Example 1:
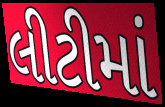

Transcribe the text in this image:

લીટીમાં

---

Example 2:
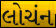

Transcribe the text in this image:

લોચંન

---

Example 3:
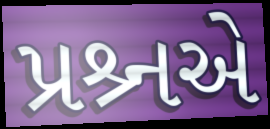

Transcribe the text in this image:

પ્રશ્ર્નએ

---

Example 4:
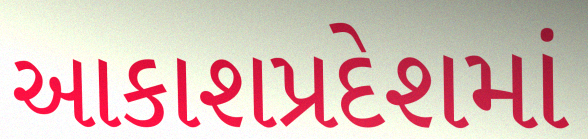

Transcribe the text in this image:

આકાશપ્રદેશમાં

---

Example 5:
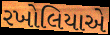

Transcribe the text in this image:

રખોલિયાએ